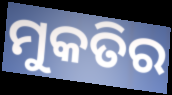
ମୁକତିର